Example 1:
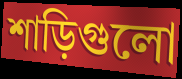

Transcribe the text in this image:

শাড়িগুলো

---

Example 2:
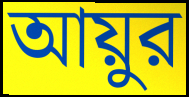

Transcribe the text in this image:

আয়ুর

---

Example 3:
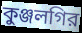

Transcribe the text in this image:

কুঞ্জলগির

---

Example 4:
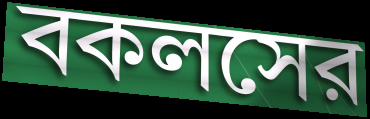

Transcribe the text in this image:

বকলসের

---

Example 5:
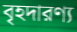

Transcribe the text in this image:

বৃহদারণ্য